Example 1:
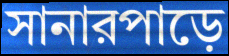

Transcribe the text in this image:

সানারপাড়ে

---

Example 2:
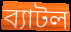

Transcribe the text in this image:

ব্যাটল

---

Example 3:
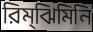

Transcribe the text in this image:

রিম্‌ঝিমিনি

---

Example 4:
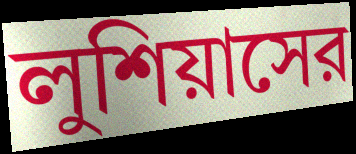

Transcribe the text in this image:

লুশিয়াসের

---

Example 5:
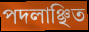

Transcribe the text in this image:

পদলাঞ্ছিত